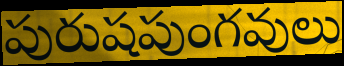
పురుషపుంగవులు